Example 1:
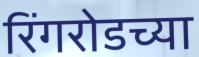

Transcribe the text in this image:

रिंगरोडच्या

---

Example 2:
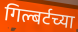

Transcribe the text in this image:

गिल्बर्टच्या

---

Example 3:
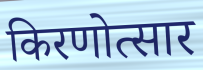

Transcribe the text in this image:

किरणोत्सार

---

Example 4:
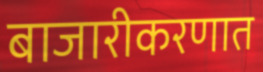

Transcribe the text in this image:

बाजारीकरणात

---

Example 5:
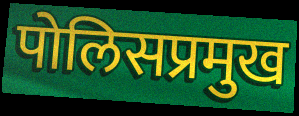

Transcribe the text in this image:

पोलिसप्रमुख